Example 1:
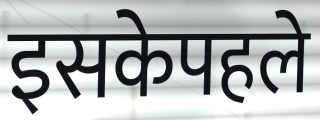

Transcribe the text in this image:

इसकेपहले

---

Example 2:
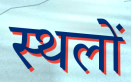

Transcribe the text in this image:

स्थलों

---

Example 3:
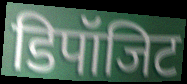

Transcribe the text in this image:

डिपॉजिट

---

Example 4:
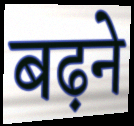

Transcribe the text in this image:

बढ़ने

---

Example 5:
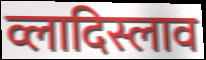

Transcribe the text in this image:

व्लादिस्लाव